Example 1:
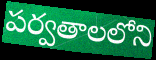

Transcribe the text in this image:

పర్వతాలలోని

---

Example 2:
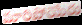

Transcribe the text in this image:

మారిపోయేరు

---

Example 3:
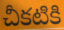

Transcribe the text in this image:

చీకటికి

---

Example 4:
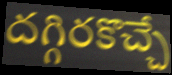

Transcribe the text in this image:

దగ్గిరకొచ్చే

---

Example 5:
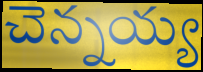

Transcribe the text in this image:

చెన్నయ్య